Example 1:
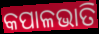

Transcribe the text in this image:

କପାଳଭାତି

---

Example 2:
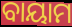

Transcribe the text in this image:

ବାୟାମ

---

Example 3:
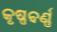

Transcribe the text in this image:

କୃଷ୍ଣଵର୍ଣ୍ଣ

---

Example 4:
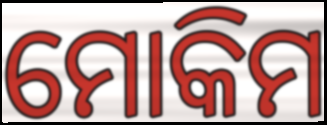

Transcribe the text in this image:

ମୋକିମ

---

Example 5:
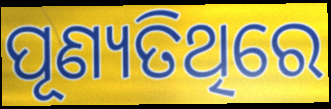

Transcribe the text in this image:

ପୂଣ୍ୟତିଥିରେ